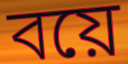
বয়ে